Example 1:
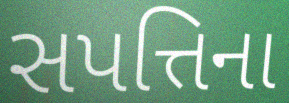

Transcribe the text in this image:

સપત્તિના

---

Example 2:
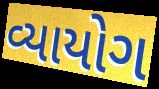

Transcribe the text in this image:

વ્યાયોગ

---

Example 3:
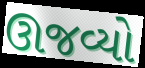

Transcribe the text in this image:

ઊજવ્યો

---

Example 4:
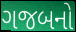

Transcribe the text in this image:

ગજબનો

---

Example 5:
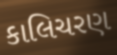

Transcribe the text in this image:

કાલિચરણ